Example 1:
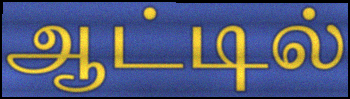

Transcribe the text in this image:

ஆட்டில்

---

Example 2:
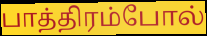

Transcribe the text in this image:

பாத்திரம்போல்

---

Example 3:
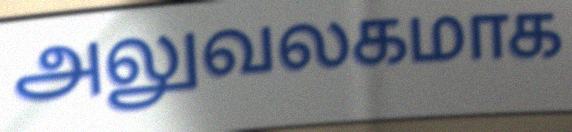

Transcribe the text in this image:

அலுவலகமாக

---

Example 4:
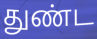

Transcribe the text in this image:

துண்ட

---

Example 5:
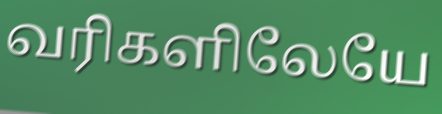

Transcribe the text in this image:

வரிகளிலேயே